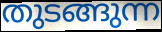
തുടങ്ങുന്ന